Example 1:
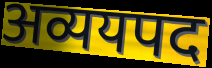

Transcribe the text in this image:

अव्ययपद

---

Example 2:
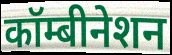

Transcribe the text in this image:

कॉम्बीनेशन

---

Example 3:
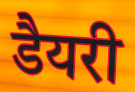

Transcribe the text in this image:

डैयरी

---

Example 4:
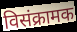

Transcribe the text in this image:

विसंक्रामक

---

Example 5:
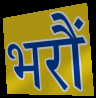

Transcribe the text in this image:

भरौं